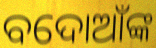
ବଦୋଆଁଙ୍କ